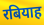
रबियाह